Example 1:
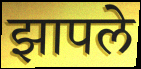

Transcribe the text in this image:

झापले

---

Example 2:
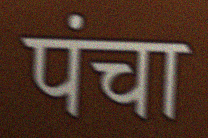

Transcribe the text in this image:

पंचा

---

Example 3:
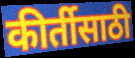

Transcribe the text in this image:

कीर्तीसाठी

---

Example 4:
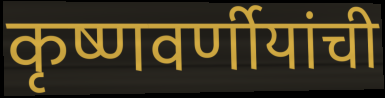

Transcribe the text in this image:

कृष्णवर्णीयांची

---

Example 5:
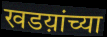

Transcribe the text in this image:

खडय़ांच्या